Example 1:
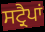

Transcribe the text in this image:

ਸਟ੍ਰੈਪਾਂ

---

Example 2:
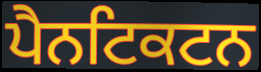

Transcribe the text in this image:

ਪੈਨਟਿਕਟਨ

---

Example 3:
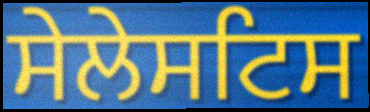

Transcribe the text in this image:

ਸੇਲੇਸਟਿਸ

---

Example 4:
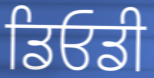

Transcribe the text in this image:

ਡਿਓਡੀ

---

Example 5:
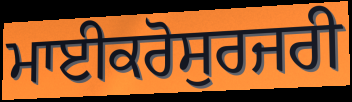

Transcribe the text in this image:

ਮਾਈਕਰੋਸੁਰਜਰੀ